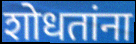
शोधतांना